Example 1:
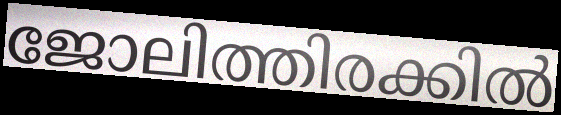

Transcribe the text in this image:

ജോലിത്തിരക്കിൽ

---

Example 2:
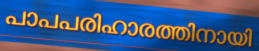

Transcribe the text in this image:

പാപപരിഹാരത്തിനായി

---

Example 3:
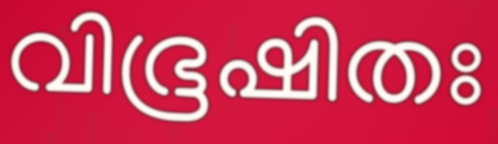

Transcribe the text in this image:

വിഭൂഷിതഃ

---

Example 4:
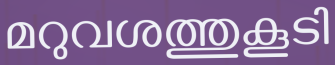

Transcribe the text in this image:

മറുവശത്തുകൂടി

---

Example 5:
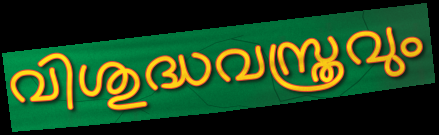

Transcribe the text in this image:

വിശുദ്ധവസ്ത്രവും